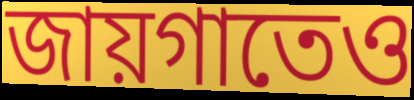
জায়গাতেও